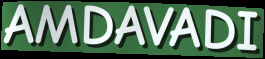
AMDAVADI